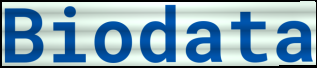
Biodata